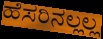
ಹೆಸರಿನಲ್ಲಲ್ಲ